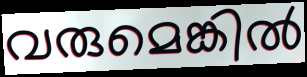
വരുമെങ്കിൽ